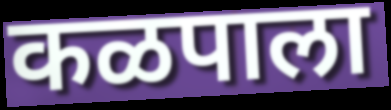
कळपाला